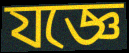
যজ্ঞে